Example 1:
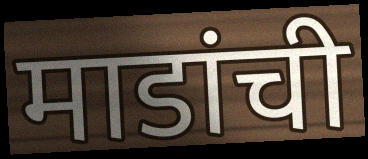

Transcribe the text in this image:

माडांची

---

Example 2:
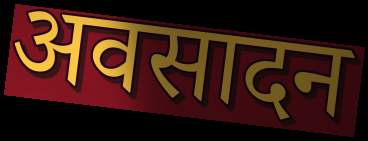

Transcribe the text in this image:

अवसादन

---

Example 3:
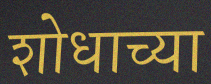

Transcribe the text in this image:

शोधाच्या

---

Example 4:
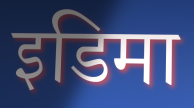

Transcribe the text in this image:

इडिमा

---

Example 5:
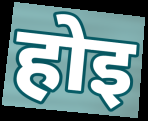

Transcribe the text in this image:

होइ